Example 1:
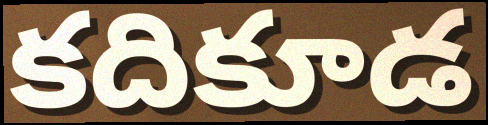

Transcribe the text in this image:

కదికూడ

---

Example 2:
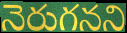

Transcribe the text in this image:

నెరుగనని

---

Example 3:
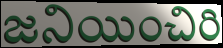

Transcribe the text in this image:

జనియించిరి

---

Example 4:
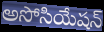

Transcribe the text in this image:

అసోసియేషన్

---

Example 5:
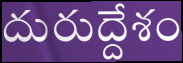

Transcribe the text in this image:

దురుద్దేశం